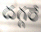
దగ్గరే